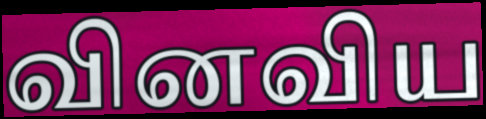
வினவிய